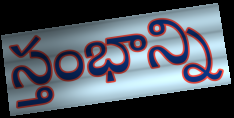
స్తంభాన్ని